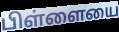
பிள்ளையை